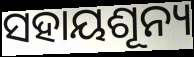
ସହାୟଶୂନ୍ୟ